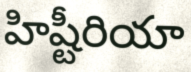
హిష్టీరియా